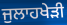
ਜੁਲਾਹਖੇੜੀ